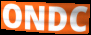
ONDC